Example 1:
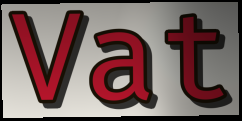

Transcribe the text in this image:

Vat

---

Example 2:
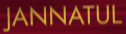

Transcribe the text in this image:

JANNATUL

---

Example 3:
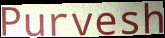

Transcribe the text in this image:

Purvesh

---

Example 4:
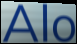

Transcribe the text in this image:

Alo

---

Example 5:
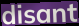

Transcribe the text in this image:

disant